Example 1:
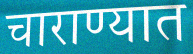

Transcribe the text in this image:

चाराण्यात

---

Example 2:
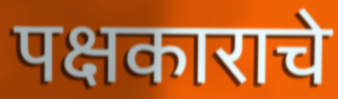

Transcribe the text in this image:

पक्षकाराचे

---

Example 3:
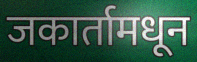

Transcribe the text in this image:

जकार्तामधून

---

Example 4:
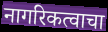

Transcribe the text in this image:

नागरिकत्वाचा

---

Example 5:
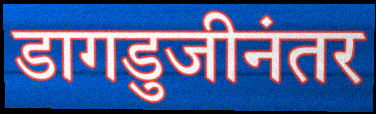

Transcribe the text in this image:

डागडुजीनंतर